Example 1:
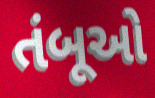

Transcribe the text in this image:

તંબૂઓ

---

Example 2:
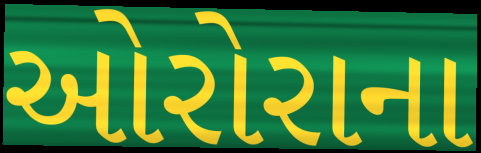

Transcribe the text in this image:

ઓરોરાના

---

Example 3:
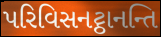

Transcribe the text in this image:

પરિવિસનટ્ઠાનન્તિ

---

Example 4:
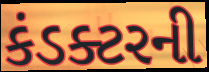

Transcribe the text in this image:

કંડક્ટરની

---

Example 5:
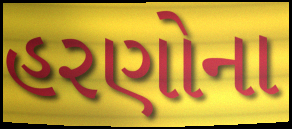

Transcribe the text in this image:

હરણોના